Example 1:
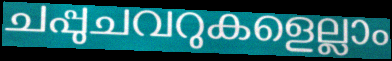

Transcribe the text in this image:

ചപ്പുചവറുകളെല്ലാം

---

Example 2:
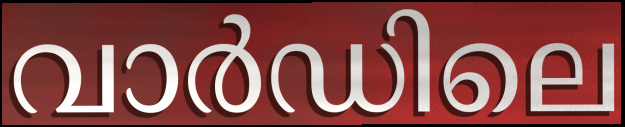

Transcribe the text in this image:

വാർഡിലെ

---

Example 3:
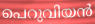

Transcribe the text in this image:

പെറുവിയൻ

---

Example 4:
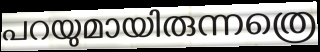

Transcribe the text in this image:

പറയുമായിരുന്നത്രെ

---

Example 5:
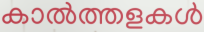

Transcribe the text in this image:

കാൽത്തളകൾ